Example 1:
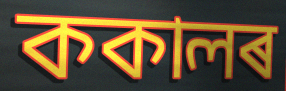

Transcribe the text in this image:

ককালৰ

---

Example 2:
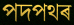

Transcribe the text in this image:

পদপথৰ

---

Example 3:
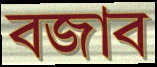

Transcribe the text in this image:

বজাব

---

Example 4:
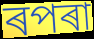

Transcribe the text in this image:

ৰপৰা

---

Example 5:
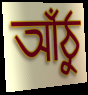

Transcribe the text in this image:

আঁঠু